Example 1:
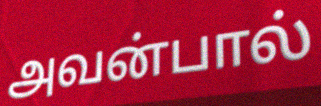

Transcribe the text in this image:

அவன்பால்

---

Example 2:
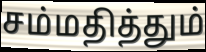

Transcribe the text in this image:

சம்மதித்தும்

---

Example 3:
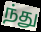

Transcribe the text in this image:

ந்து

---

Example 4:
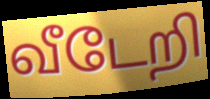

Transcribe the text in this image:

வீடேறி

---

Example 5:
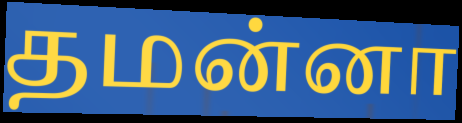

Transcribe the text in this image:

தமன்னா